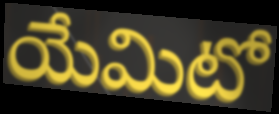
యేమిటో